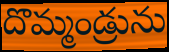
దొమ్మండ్రును